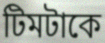
টিমটাকে